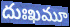
దుఃఖమూ